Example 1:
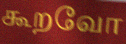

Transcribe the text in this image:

கூறவோ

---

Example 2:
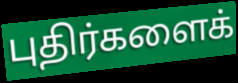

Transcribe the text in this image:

புதிர்களைக்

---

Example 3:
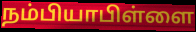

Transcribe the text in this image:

நம்பியாபிள்ளை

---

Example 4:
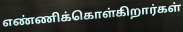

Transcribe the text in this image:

எண்ணிக்கொள்கிறார்கள்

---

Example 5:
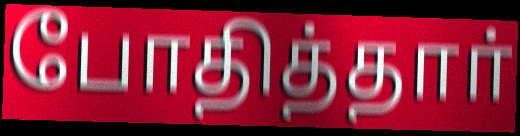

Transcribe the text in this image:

போதித்தார்